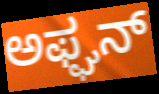
ಅಫ್ಘನ್